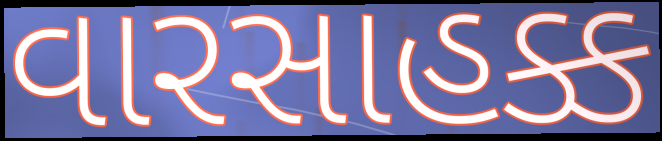
વારસાહક્ક